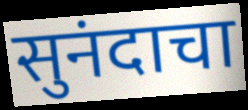
सुनंदाचा